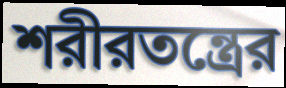
শরীরতন্ত্রের